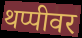
थप्पीवर